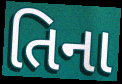
તિના